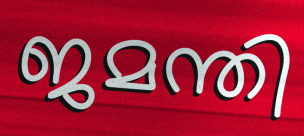
ജമന്തി